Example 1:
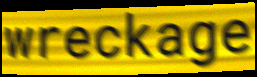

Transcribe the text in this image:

wreckage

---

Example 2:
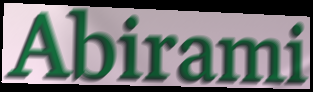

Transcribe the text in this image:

Abirami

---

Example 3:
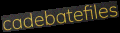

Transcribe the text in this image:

cadebatefiles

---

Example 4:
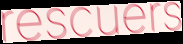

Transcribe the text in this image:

rescuers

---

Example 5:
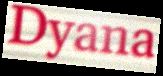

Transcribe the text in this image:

Dyana